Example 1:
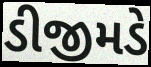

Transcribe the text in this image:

ડીજીમડે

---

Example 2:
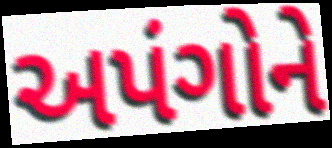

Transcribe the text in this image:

અપંગોને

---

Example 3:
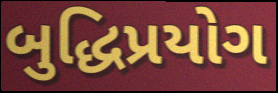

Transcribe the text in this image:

બુદ્ધિપ્રયોગ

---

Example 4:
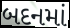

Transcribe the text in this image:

બદનમાં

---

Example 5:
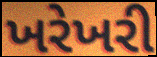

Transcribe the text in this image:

ખરેખરી